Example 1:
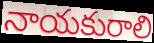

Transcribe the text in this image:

నాయకురాలి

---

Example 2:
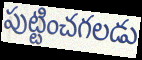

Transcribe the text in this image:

పుట్టించగలడు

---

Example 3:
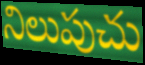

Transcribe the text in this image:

నిలుపుచు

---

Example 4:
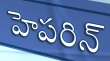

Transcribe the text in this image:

హెపరిన్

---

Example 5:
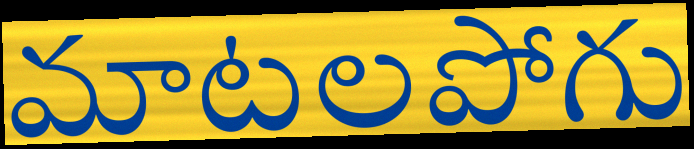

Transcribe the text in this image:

మాటలపోగు